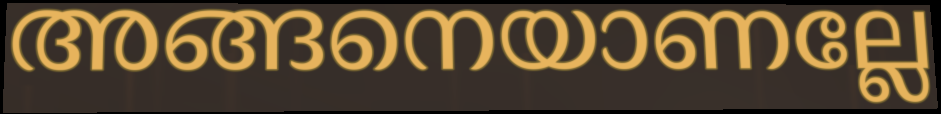
അങ്ങനെയാണല്ലേ